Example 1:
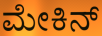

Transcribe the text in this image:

ಮೇಕಿನ್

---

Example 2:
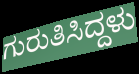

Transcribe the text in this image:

ಗುರುತಿಸಿದ್ದಳು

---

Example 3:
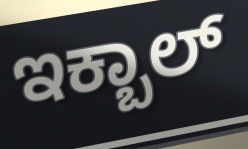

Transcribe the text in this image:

ಇಕ್ಬಾಲ್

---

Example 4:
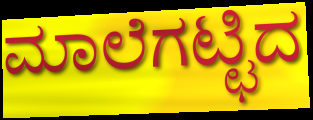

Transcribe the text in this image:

ಮಾಲೆಗಟ್ಟಿದ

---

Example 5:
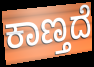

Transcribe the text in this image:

ಕಾಣ್ತದೆ